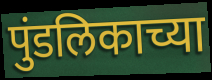
पुंडलिकाच्या